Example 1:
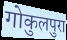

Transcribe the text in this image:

गोकुलपुरा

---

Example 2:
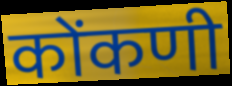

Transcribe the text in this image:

कोंकणी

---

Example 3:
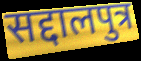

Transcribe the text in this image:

सद्दालपुत्र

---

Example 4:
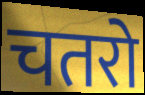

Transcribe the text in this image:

चतरो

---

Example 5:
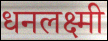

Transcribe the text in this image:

धनलक्ष्मी